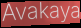
Avakaya